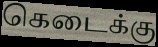
கெடைக்கு